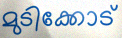
മുടിക്കോട്